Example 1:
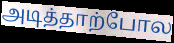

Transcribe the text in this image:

அடித்தாற்போல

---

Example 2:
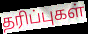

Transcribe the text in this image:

தரிப்புகள்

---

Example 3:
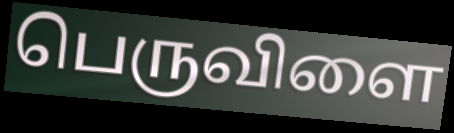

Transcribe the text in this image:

பெருவிளை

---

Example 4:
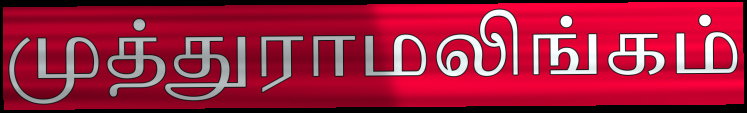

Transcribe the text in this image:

முத்துராமலிங்கம்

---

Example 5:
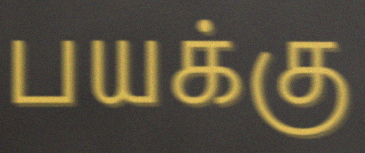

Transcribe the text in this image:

பயக்கு